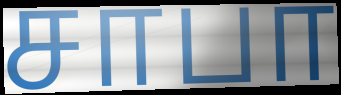
சாபா